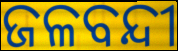
ଜଳବନ୍ଦୀ